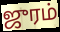
ஜுரம்